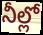
నీల్లో